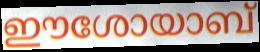
ഈശോയാബ്